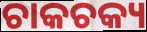
ଚାକଚକ୍ୟ